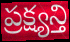
ప్రక్ష్యన్తి